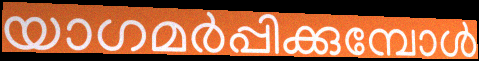
യാഗമർപ്പിക്കുമ്പോൾ